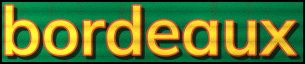
bordeaux